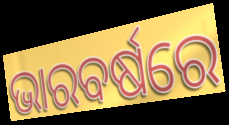
ଭାରବର୍ଷରେ